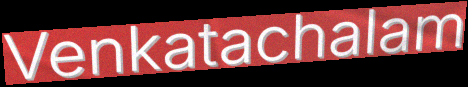
Venkatachalam